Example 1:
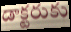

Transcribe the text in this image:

డాక్టరుకు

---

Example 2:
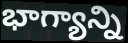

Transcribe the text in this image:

భాగ్యాన్ని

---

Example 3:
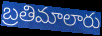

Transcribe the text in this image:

బ్రతిమాలారు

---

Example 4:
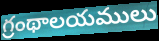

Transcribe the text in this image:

గ్రంథాలయములు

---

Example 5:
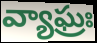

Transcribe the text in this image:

వ్యాఘ్రః